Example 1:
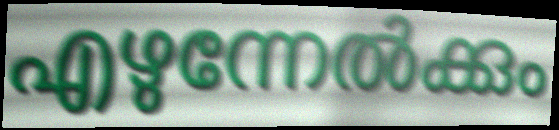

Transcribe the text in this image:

എഴുന്നേൽക്കും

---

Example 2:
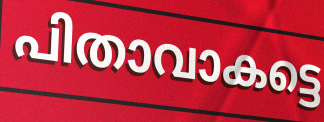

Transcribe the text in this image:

പിതാവാകട്ടെ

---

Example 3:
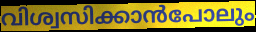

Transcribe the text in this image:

വിശ്വസിക്കാൻപോലും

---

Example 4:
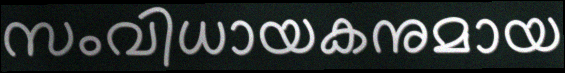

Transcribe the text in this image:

സംവിധായകനുമായ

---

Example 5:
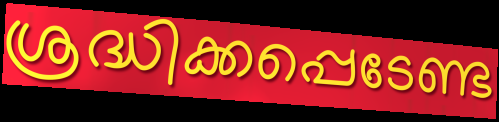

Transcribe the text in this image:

ശ്രദ്ധിക്കപ്പെടേണ്ട